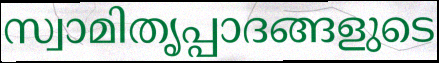
സ്വാമിതൃപ്പാദങ്ങളുടെ